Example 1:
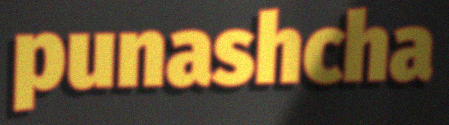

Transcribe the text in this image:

punashcha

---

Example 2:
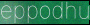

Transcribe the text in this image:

eppodhu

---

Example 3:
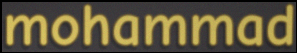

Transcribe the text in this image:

mohammad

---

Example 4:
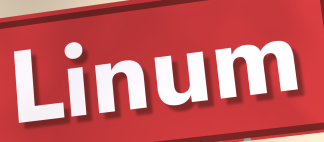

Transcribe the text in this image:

Linum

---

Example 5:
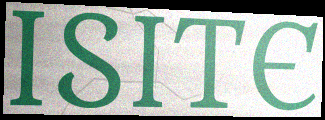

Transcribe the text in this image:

ISITE